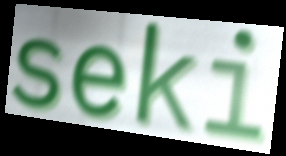
seki